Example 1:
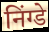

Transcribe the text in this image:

निंग्डे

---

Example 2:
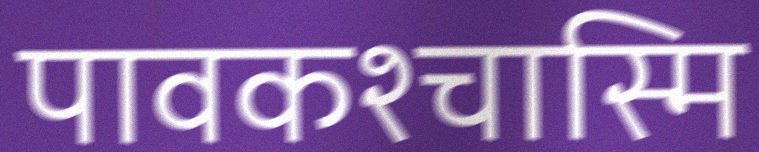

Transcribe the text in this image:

पावकश्चास्मि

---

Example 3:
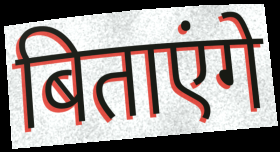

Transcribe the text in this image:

बिताएंगे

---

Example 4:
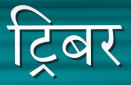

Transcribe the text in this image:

ट्रिबर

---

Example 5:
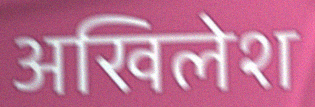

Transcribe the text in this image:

अखिलेश